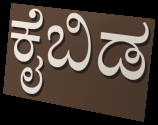
ಕೈಬಿಡ